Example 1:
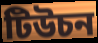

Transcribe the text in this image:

টিউচন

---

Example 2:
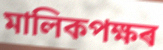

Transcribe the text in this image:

মালিকপক্ষৰ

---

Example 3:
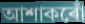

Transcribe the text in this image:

আশাকৰোঁ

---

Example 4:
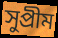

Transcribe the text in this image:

সুপ্ৰীম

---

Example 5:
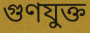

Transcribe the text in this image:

গুণযুক্ত